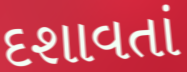
દશાવતાં